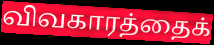
விவகாரத்தைக்